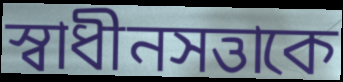
স্বাধীনসত্তাকে